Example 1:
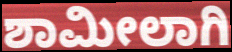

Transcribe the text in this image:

ಶಾಮೀಲಾಗಿ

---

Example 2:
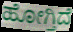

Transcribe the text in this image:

ಹೋಗ್ತಿದೆ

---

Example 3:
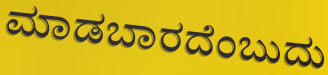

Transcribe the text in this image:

ಮಾಡಬಾರದೆಂಬುದು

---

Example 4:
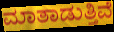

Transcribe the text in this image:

ಮಾತಾಡುತ್ತಿವೆ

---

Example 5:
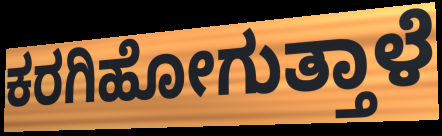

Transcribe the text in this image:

ಕರಗಿಹೋಗುತ್ತಾಳೆ